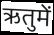
ऋतुमें